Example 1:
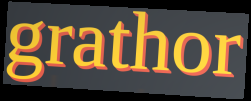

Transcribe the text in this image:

grathor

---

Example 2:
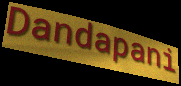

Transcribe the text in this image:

Dandapani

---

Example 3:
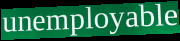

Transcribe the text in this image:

unemployable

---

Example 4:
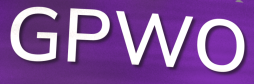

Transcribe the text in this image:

GPWO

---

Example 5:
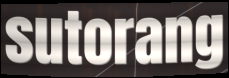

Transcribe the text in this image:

sutorang